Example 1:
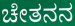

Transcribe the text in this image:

ಚೇತನನ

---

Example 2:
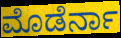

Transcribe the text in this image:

ಮೊಡೆರ್ನಾ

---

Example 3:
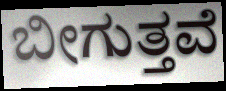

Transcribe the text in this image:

ಬೀಗುತ್ತವೆ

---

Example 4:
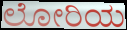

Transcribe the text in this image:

ಲೋರಿಯ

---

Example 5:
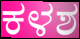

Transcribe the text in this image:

ಕಳಶ